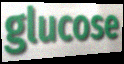
glucose